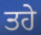
ਤਹੇ